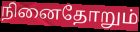
நினைதோறும்